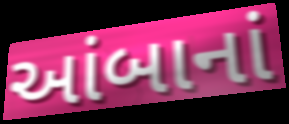
આંબાનાં